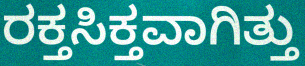
ರಕ್ತಸಿಕ್ತವಾಗಿತ್ತು